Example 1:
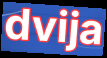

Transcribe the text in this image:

dvija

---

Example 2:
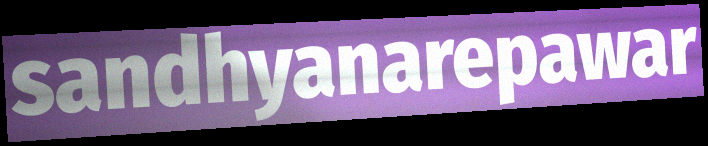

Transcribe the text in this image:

sandhyanarepawar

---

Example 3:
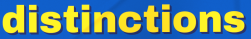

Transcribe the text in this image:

distinctions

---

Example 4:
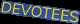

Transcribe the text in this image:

DEVOTEES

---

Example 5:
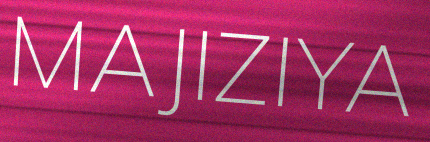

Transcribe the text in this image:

MAJIZIYA